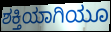
ಶಕ್ತಿಯಾಗಿಯೂ